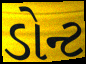
ડોન્ટ